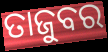
ତାଜୁବର